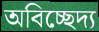
অবিচ্ছেদ্য